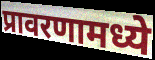
प्रावरणामध्ये